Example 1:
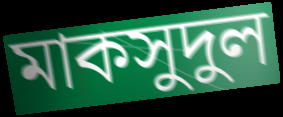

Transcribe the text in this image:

মাকসুদুল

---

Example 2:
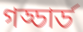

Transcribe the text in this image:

গড্ডার্ড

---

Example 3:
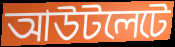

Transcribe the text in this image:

আউটলেটে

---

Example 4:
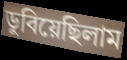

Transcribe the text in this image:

ডুবিয়েছিলাম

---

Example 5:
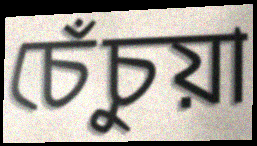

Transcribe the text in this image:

চেঁচুয়া